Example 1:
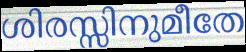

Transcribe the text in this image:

ശിരസ്സിനുമീതേ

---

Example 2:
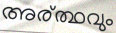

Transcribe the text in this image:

അര്ത്ഥവും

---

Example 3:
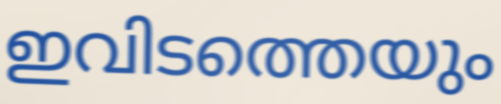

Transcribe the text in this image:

ഇവിടത്തെയും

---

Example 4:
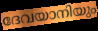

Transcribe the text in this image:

ദേവയാനിയും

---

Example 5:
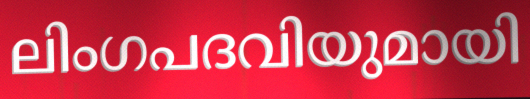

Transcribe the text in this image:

ലിംഗപദവിയുമായി